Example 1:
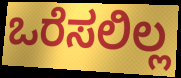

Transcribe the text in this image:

ಒರೆಸಲಿಲ್ಲ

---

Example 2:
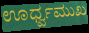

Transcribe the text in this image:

ಊರ್ಧ್ವಮುಖ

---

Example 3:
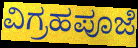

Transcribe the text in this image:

ವಿಗ್ರಹಪೂಜೆ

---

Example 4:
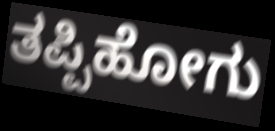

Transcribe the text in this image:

ತಪ್ಪಿಹೋಗು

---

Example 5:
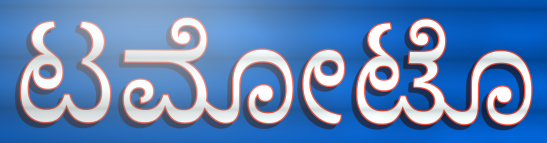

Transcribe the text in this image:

ಟಮೋಟೊ